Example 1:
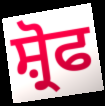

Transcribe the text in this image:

ਸ਼੍ਰੋਫ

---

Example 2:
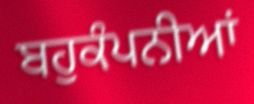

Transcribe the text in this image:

ਬਹੁਕੰਪਨੀਆਂ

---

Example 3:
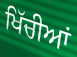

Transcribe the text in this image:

ਖਿੱਚੀਆਂ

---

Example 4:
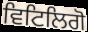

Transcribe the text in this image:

ਵਿਟਿਲਿਗੋ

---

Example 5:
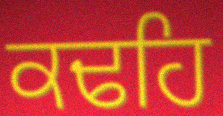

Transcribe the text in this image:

ਕਢਹਿ